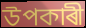
উপকাৰী